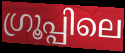
ഗ്രൂപ്പിലെ